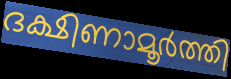
ദക്ഷിണാമൂർത്തി